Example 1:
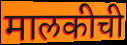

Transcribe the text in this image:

मालकीची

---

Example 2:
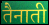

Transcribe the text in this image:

तैनाती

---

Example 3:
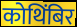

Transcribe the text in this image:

कोथिंबिर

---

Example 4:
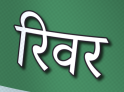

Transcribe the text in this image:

रिवर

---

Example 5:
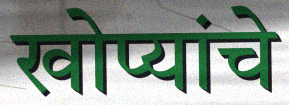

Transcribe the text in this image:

खोप्यांचे